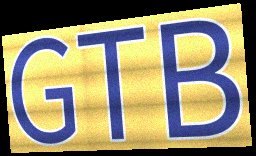
GTB